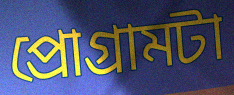
প্রোগ্রামটা